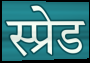
स्‍प्रेड